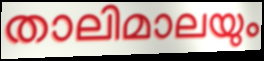
താലിമാലയും